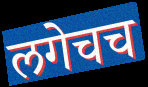
लगेचच